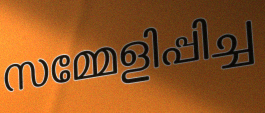
സമ്മേളിപ്പിച്ച